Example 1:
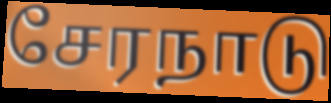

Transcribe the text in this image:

சேரநாடு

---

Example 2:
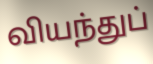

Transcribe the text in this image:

வியந்துப்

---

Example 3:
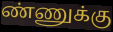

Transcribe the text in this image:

ண்ணுக்கு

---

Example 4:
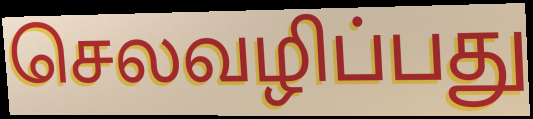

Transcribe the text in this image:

செலவழிப்பது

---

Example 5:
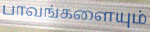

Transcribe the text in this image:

பாவங்களையும்